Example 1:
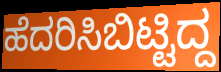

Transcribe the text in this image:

ಹೆದರಿಸಿಬಿಟ್ಟಿದ್ದ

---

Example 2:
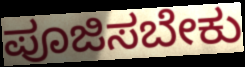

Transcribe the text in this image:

ಪೂಜಿಸಬೇಕು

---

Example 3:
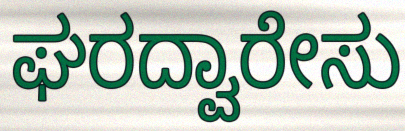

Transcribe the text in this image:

ಘರದ್ವಾರೇಸು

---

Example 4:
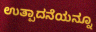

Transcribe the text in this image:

ಉತ್ಪಾದನೆಯನ್ನೂ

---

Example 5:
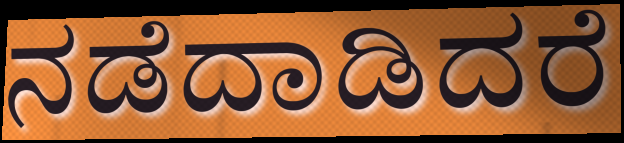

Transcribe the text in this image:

ನಡೆದಾಡಿದರೆ